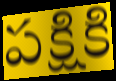
పక్షికి